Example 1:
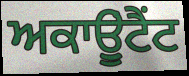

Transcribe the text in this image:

ਅਕਾਉੂਂਟੈਂਟ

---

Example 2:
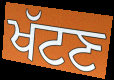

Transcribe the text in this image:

ਖੱਟਣ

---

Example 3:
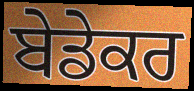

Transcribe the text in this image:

ਬੇਡੇਕਰ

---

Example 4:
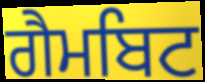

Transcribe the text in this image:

ਗੈਮਬਿਟ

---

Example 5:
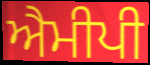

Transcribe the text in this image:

ਐਮੀਪੀ